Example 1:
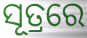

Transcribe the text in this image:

ସୂତ୍ରରେ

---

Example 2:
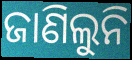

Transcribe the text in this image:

ଜାଣିଲୁନି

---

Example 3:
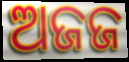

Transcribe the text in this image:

ଅଜଜ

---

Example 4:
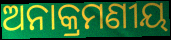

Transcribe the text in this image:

ଅନାକ୍ରମଣୀୟ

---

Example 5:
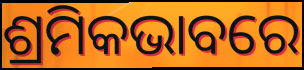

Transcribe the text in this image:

ଶ୍ରମିକଭାବରେ